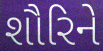
શૌરિને